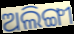
ଅଲିଙ୍ଗୀ